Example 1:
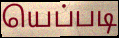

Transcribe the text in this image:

யெப்படி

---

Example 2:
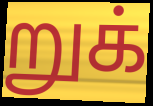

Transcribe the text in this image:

றுக்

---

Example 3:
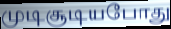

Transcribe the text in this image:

முடிசூடியபோது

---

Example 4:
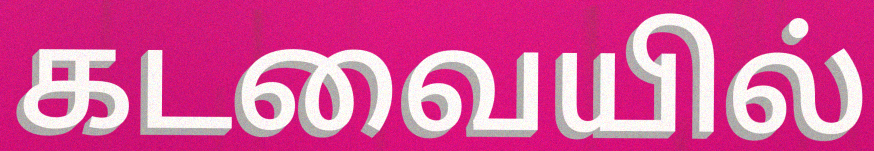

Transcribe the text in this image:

கடவையில்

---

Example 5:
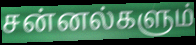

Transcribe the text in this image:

சன்னல்களும்